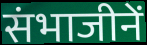
संभाजीनें